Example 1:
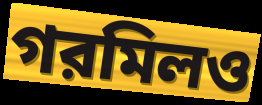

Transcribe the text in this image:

গরমিলও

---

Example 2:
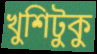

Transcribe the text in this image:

খুশিটুকু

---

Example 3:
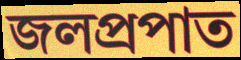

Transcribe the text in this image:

জলপ্রপাত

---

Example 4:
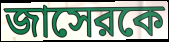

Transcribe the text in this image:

জাসেরকে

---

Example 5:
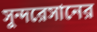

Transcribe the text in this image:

সুন্দরেসানের